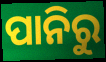
ପାନିରୁ